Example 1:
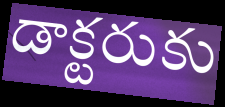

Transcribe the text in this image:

డాక్టరుకు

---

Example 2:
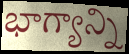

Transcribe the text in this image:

భాగ్యాన్ని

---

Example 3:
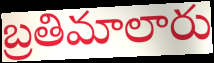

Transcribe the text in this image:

బ్రతిమాలారు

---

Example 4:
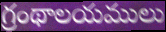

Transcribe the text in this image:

గ్రంథాలయములు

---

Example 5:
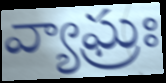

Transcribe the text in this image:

వ్యాఘ్రః